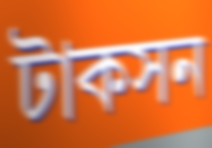
টাকসন